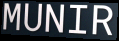
MUNIR